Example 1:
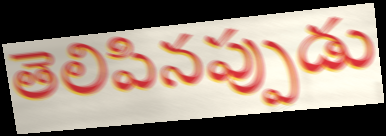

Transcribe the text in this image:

తెలిపినప్పుడు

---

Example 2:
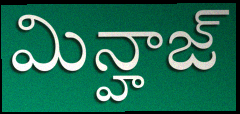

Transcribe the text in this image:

మిన్హాజ్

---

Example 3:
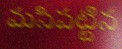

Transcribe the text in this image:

మసిపట్టిన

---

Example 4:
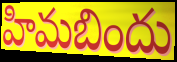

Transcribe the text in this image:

హిమబిందు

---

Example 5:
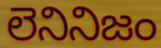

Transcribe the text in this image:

లెనినిజం